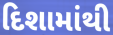
દિશામાંથી